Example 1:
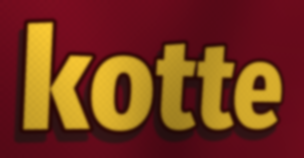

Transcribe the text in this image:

kotte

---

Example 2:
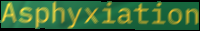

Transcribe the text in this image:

Asphyxiation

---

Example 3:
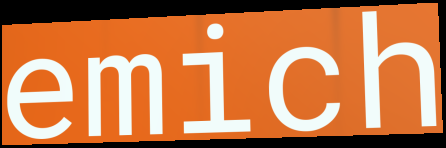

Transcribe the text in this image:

emich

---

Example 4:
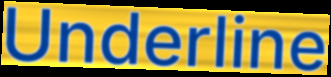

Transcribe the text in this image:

Underline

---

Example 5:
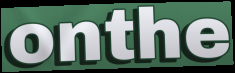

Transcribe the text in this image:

onthe